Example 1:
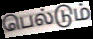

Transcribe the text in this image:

பெல்டும்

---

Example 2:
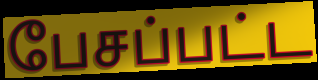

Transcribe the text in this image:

பேசப்பட்ட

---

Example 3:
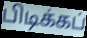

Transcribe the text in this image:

பிடிக்கப்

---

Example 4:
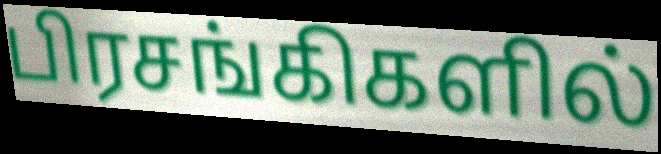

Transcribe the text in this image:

பிரசங்கிகளில்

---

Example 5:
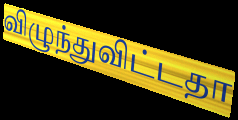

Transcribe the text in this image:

விழுந்துவிட்டதா